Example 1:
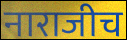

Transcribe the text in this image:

नाराजीच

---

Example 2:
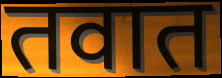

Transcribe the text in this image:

तवात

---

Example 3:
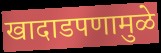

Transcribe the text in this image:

खादाडपणामुळे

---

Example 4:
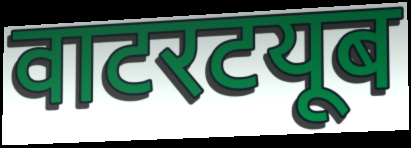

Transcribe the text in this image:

वाटरटयूब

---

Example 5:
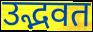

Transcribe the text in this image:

उद्भवत